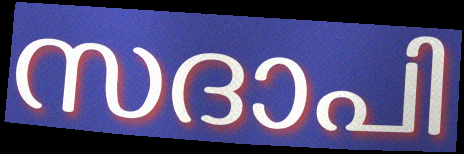
സദാപി